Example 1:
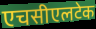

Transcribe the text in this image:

एचसीएलटेक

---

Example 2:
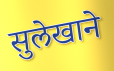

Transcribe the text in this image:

सुलेखाने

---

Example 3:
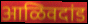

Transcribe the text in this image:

आळिवदांड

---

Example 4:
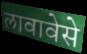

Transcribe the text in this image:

लावावेसे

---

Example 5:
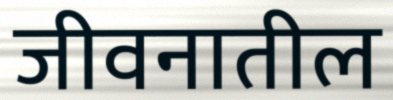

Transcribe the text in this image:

जीवनातील